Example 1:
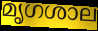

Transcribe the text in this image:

മൃഗശാല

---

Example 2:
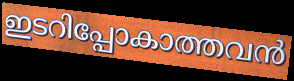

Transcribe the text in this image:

ഇടറിപ്പോകാത്തവൻ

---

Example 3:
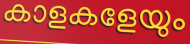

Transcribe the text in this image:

കാളകളേയും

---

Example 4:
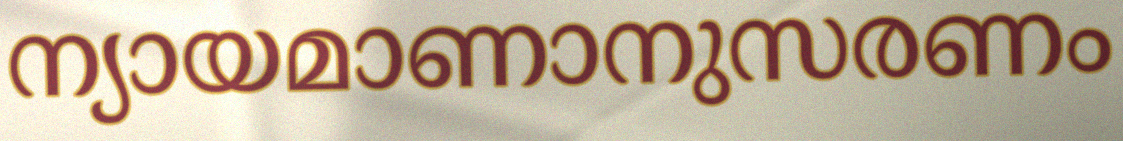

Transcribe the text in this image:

ന്യായമാണാനുസരണം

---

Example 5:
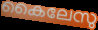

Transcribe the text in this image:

കൈലേസു